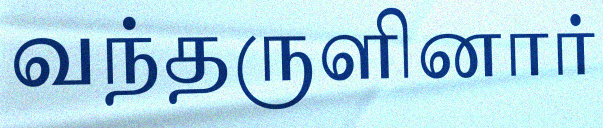
வந்தருளினார்